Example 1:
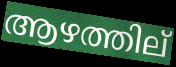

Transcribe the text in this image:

ആഴത്തില്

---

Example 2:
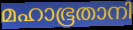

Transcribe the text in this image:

മഹാഭൂതാനി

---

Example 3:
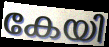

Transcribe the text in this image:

കേയി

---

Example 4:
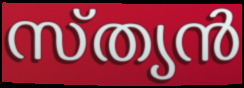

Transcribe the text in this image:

സ്‌ത്യൻ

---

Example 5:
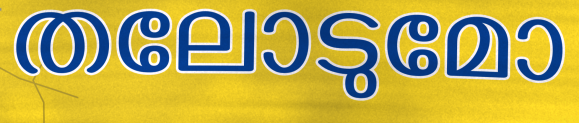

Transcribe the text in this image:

തലോടുമോ